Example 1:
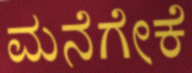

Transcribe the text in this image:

ಮನೆಗೇಕೆ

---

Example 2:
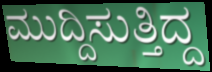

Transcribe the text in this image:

ಮುದ್ದಿಸುತ್ತಿದ್ದ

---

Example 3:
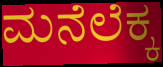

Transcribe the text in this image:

ಮನೆಲೆಕ್ಕ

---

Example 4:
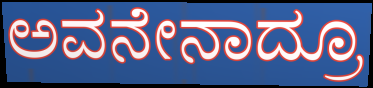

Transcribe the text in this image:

ಅವನೇನಾದ್ರೂ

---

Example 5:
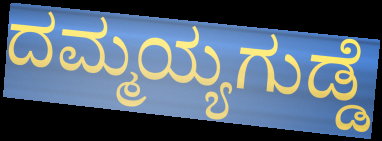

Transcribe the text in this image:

ದಮ್ಮಯ್ಯಗುಡ್ಡೆ